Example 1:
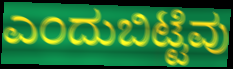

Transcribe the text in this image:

ಎಂದುಬಿಟ್ಟೆವು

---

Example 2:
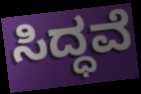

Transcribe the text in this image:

ಸಿದ್ಧವೆ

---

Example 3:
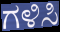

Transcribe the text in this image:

ಗಳಿಸಿ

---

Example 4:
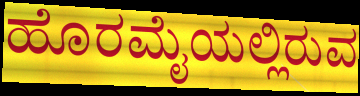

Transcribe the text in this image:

ಹೊರಮೈಯಲ್ಲಿರುವ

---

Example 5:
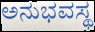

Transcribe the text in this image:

ಅನುಭವಸ್ಥ